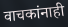
वाचकांनाही